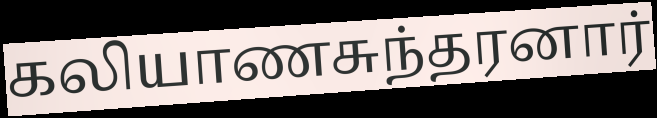
கலியாணசுந்தரனார்